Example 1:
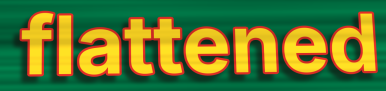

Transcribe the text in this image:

flattened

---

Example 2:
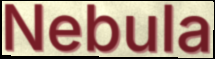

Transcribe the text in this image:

Nebula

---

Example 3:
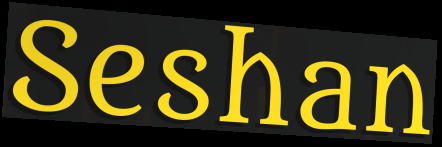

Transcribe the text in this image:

Seshan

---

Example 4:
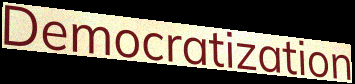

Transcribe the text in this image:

Democratization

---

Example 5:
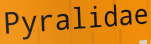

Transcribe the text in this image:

Pyralidae